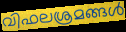
വിഫലശ്രമങ്ങൾ